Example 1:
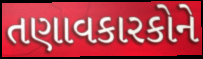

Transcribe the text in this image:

તણાવકારકોને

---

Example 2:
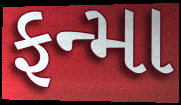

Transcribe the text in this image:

ફન્મા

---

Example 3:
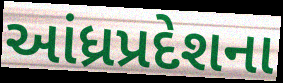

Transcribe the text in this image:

આંધ્રપ્રદેશના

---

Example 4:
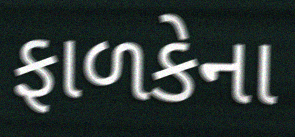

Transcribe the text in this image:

ફાળકેના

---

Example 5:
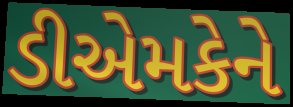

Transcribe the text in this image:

ડીએમકેને